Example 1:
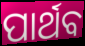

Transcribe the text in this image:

ପାର୍ଥବ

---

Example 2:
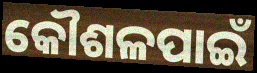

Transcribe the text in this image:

କୌଶଳପାଇଁ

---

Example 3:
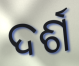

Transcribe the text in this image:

ଦର୍ଶ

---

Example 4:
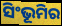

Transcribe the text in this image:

ସିଂଭୂମିର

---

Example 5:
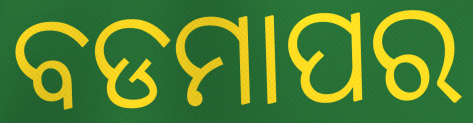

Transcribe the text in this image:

ବଡମାପର